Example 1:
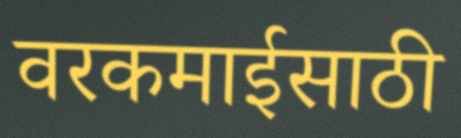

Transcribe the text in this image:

वरकमाईसाठी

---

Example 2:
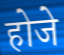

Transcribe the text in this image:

होजे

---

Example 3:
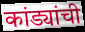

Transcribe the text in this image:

कांड्यांची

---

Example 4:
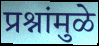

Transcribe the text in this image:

प्रश्नांमुळे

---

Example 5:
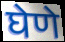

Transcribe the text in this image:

घेणे